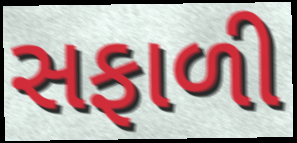
સફાળી